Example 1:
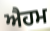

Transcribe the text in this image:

ਐਹਮ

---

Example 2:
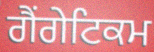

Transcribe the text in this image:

ਗੈਂਗੇਟਿਕਮ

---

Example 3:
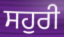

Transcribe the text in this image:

ਸਹੁਰੀ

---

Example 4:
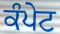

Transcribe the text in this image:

ਕੰਪੇਟ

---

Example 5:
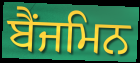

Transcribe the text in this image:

ਬੈਂਜਮਿਨ